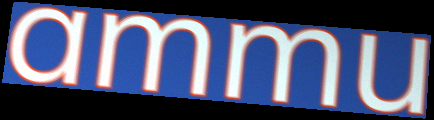
ammu